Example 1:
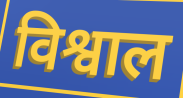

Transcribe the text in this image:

विश्वाल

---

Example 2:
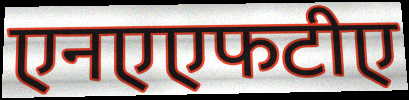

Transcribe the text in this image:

एनएएफटीए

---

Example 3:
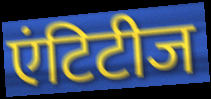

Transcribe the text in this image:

एंटिटीज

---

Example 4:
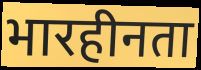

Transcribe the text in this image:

भारहीनता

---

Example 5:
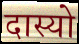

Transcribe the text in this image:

दास्यो